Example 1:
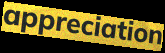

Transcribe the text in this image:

appreciation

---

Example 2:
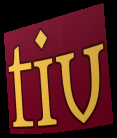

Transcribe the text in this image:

tiu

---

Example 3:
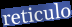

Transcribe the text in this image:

reticulo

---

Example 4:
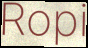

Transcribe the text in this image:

Ropi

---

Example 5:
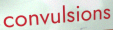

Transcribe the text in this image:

convulsions